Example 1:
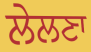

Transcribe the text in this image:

ਲੇਲਣਾ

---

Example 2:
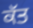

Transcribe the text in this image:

ਕੱਤ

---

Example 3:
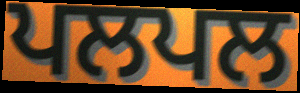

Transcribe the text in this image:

ਪਲਪਲ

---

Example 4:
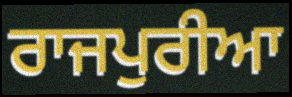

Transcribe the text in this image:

ਰਾਜਪੁਰੀਆ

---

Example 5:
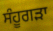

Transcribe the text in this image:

ਸੰਹੂਗੜਾ